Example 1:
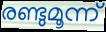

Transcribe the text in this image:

രണ്ടുമൂന്ന്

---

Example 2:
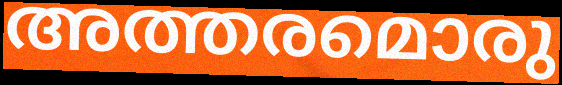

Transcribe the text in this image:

അത്തരമൊരു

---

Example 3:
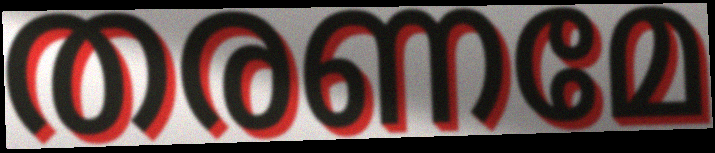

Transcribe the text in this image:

തരണമേ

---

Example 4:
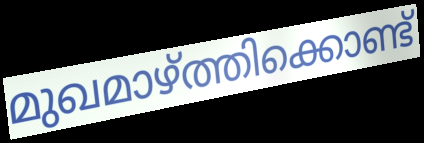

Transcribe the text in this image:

മുഖമാഴ്ത്തിക്കൊണ്ട്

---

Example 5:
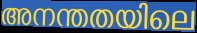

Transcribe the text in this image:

അനന്തതയിലെ